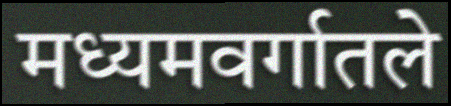
मध्यमवर्गातले